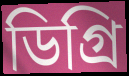
ডিগ্ৰি